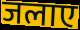
जलाए